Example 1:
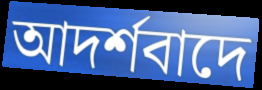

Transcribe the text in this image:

আদর্শবাদে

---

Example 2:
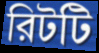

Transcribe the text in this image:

রিটটি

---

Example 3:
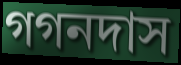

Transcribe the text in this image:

গগনদাস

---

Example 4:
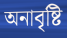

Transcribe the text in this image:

অনাবৃষ্টি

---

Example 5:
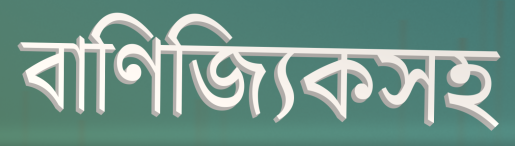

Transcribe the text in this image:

বাণিজ্যিকসহ